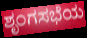
ಶೃಂಗಸಭೆಯ